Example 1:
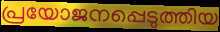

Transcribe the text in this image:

പ്രയോജനപ്പെടുത്തിയ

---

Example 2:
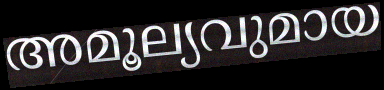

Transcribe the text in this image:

അമൂല്യവുമായ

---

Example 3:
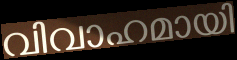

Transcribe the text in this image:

വിവാഹമായി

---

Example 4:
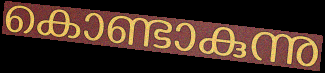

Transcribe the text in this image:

കൊണ്ടാകുന്നു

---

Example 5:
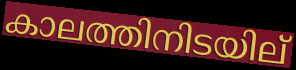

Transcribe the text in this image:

കാലത്തിനിടയില്